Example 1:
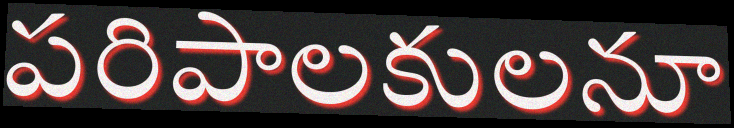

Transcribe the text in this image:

పరిపాలకులనూ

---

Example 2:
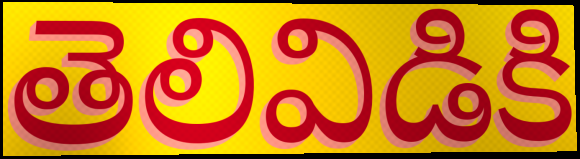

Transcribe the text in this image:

తెలివిడికి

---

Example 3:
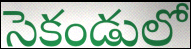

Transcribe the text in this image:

సెకండులో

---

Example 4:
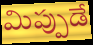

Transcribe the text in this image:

మిప్పుడే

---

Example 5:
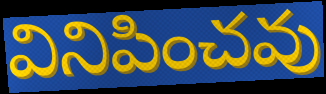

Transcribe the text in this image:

వినిపించవు